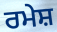
ਰਮੇਸ਼